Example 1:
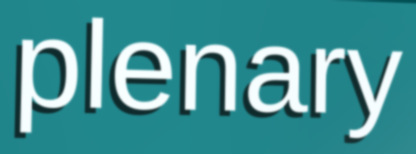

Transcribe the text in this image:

plenary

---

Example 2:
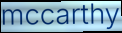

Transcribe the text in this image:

mccarthy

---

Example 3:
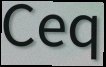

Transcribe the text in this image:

Ceq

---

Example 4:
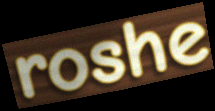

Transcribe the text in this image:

roshe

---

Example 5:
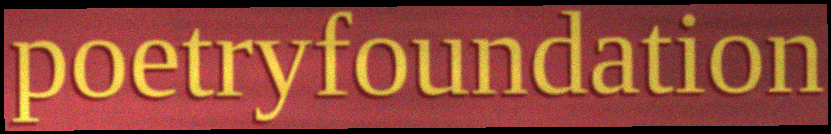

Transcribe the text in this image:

poetryfoundation